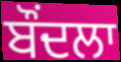
ਬੌਂਦਲਾ